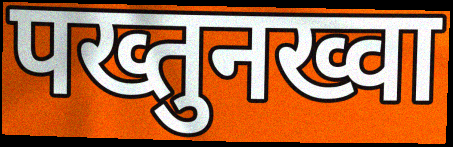
पख्तुनख्वा